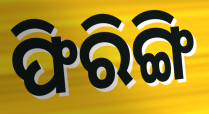
ଫିରିଙ୍ଗି